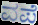
ವಪೆ